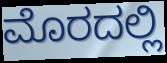
ಮೊರದಲ್ಲಿ